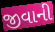
જીવાની